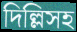
দিল্লিসহ